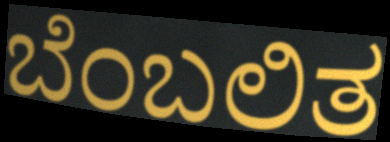
ಬೆಂಬಲಿತ